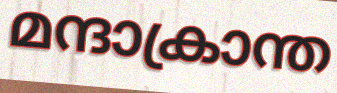
മന്ദാക്രാന്ത